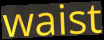
waist